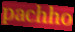
pachho